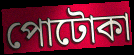
পোটোকা